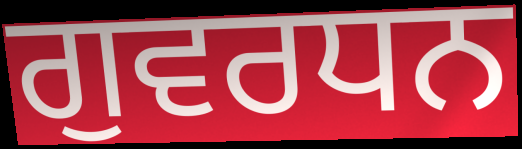
ਗੁਵਰਧਨ